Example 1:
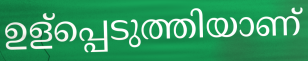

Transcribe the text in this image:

ഉള്പ്പെടുത്തിയാണ്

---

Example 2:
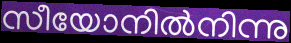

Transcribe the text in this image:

സീയോനിൽനിന്നു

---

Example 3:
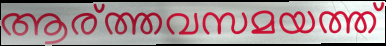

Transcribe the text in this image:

ആര്ത്തവസമയത്ത്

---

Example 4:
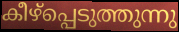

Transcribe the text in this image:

കീഴ്പ്പെടുത്തുന്നു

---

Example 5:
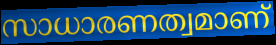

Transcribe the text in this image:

സാധാരണത്വമാണ്